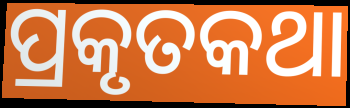
ପ୍ରକୃତକଥା